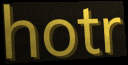
hotr